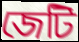
জেটি